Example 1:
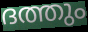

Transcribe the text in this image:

ദത്തും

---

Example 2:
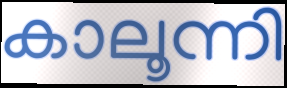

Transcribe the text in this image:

കാലൂന്നി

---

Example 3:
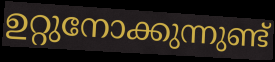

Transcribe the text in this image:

ഉറ്റുനോക്കുന്നുണ്ട്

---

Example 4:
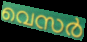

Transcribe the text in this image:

വെസർ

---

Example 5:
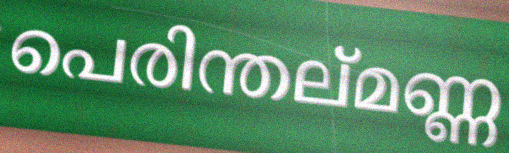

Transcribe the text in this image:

പെരിന്തല്മണ്ണ